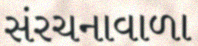
સંરચનાવાળા